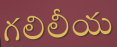
గలిలీయ